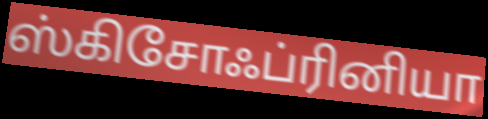
ஸ்கிசோஃப்ரினியா